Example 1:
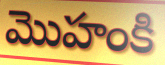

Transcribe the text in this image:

మొహంకి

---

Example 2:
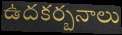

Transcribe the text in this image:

ఉదకర్బనాలు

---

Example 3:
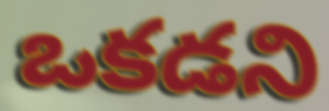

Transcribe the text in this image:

ఒకడని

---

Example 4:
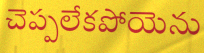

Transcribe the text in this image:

చెప్పలేకపోయెను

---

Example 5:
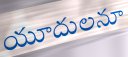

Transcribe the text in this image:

యూదులనూ